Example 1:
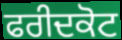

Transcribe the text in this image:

ਫਰੀਦਕੋਟ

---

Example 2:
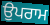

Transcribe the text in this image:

ਉਪਰਾਮ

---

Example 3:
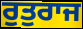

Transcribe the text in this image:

ਰੁਤੁਰਾਜ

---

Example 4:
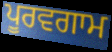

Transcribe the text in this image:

ਪੂਰਵਗਾਮ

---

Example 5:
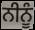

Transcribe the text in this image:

ਨੀਨੂੰ